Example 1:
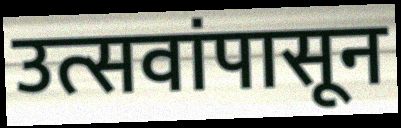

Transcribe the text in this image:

उत्सवांपासून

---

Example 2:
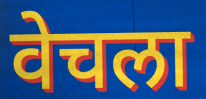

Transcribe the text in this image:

वेचला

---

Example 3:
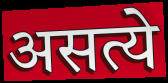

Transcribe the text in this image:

असत्ये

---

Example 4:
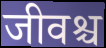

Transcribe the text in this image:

जीवश्च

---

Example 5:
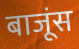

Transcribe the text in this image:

बाजूंस